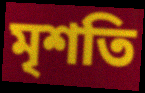
মৃশতি